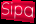
Sipa